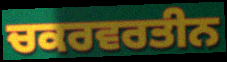
ਚਕਰਵਰਤੀਨ